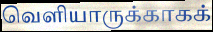
வெளியாருக்காகக்